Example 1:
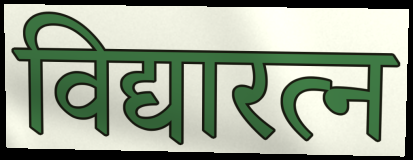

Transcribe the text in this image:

विद्यारत्न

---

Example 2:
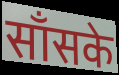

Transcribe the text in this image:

साँसके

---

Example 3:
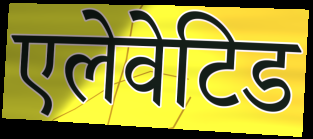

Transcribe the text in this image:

एलेवेटिड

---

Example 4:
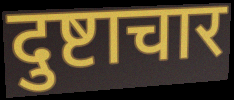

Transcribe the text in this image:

दुष्टाचार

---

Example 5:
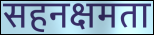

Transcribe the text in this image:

सहनक्षमता